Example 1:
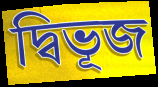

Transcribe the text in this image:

দ্বিভূজ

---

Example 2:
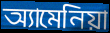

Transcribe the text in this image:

অ্যামেনিয়া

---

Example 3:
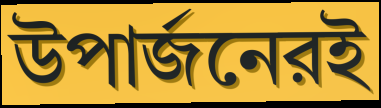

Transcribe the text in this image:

উপার্জনেরই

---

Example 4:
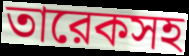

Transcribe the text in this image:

তারেকসহ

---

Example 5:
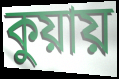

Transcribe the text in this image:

কুয়ায়